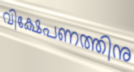
വിക്ഷേപണത്തിനു